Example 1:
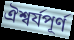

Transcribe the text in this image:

ঐশ্বর্যপূর্ণ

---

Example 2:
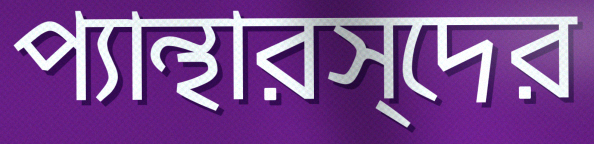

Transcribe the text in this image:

প্যান্থারস্‌দের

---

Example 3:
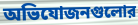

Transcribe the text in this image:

অভিযোজনগুলোর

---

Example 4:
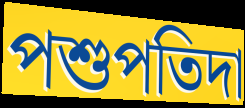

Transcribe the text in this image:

পশুপতিদা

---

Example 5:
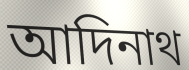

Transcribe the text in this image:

আদিনাথ